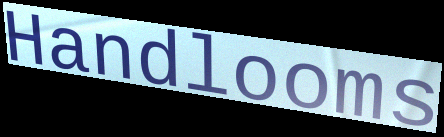
Handlooms